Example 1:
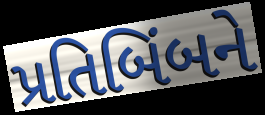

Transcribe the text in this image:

પ્રતિબિંબને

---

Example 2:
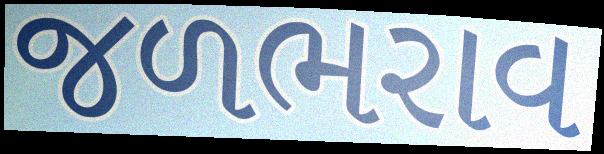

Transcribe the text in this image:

જળભરાવ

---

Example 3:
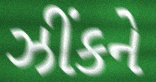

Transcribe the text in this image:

ઝીંકને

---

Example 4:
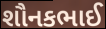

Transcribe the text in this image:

શૌનકભાઈ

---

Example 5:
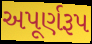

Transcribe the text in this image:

અપૂર્ણરૂપ